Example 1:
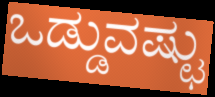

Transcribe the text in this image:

ಒಡ್ಡುವಷ್ಟು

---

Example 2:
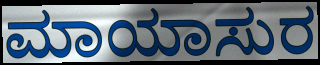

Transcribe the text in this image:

ಮಾಯಾಸುರ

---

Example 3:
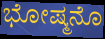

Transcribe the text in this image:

ಭೋಷ್ಮನೊ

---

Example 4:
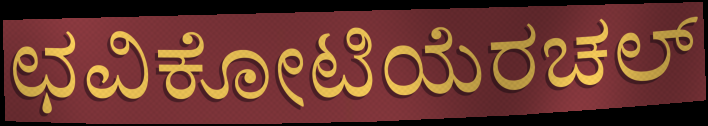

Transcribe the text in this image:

ಛವಿಕೋಟಿಯೆರಚಲ್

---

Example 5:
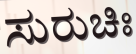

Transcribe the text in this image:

ಸುರುಚಿಃ